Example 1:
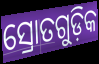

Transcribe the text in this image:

ସ୍ରୋତଗୁଡ଼ିକ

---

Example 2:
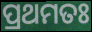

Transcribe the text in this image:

ପ୍ରଥମତଃ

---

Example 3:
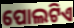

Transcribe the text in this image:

ପୋଲଟିଏ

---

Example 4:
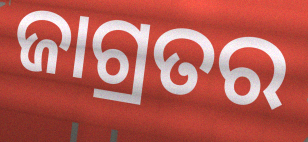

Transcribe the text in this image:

ଜାଗ୍ରତର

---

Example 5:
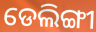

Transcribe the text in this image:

ଡେଲିଙ୍ଗୀ